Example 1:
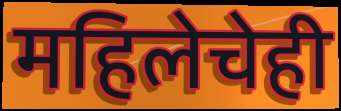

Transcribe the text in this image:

महिलेचेही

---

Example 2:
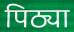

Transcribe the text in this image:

पिठ्या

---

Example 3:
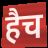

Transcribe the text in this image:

हैच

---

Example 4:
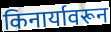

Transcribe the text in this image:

किनार्यावरून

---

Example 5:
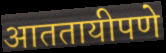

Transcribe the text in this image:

आततायीपणे